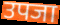
उपजा